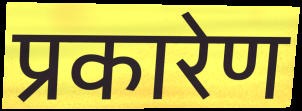
प्रकारेण